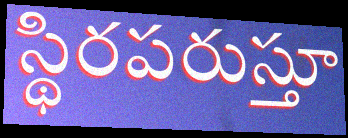
స్థిరపరుస్తూ